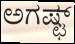
ಅಗಷ್ಟ್